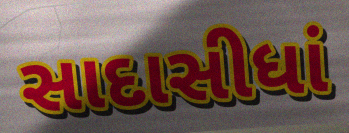
સાદાસીધાં